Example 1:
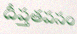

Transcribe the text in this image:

దీప్తతపసం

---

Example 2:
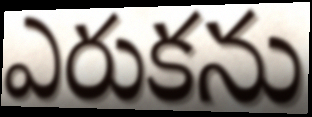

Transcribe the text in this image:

ఎరుకను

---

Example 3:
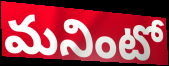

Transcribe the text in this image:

మనింటో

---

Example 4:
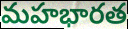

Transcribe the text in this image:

మహభారత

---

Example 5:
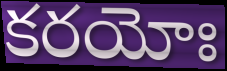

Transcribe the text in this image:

కరయోః